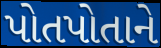
પોતપોતાને